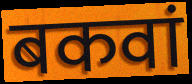
बकवां